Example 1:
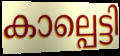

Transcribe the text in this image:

കാല്പെട്ടി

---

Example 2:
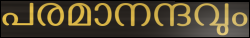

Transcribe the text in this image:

പരമാനന്ദവും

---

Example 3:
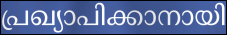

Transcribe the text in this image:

പ്രഖ്യാപിക്കാനായി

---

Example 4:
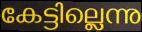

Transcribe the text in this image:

കേട്ടില്ലെന്നു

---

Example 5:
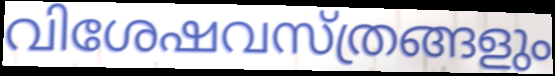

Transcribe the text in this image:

വിശേഷവസ്ത്രങ്ങളും